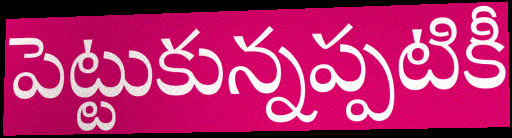
పెట్టుకున్నప్పటికీ